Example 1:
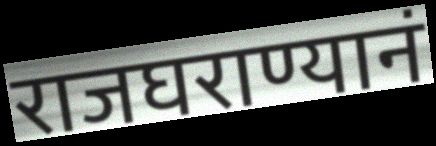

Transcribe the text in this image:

राजघराण्यानं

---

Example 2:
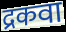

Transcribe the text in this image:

द्रकवा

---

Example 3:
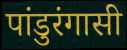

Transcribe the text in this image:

पांडुरंगासी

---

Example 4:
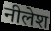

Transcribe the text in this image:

नीलेश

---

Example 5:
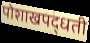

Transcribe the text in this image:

पोशाखपद्धती